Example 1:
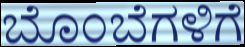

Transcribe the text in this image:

ಬೊಂಬೆಗಳಿಗೆ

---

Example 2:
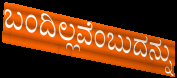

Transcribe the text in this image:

ಬಂದಿಲ್ಲವೆಂಬುದನ್ನು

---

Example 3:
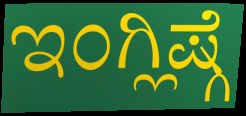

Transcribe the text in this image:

ಇಂಗ್ಲಿಷ್ಗೆ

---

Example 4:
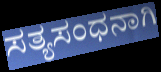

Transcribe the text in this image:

ಸತ್ಯಸಂಧನಾಗಿ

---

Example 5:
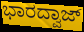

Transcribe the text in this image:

ಭಾರದ್ವಾಜ್